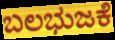
ಬಲಭುಜಕೆ